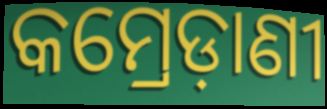
କମ୍ରେଡ଼ାଣୀ